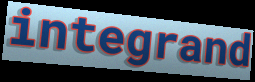
integrand